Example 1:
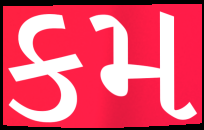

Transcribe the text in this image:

કમ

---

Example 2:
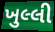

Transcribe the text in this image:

ખુલ્લી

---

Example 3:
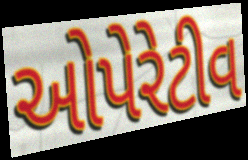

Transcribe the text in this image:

ઓપેરેટીવ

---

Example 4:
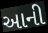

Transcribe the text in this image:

આની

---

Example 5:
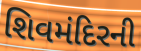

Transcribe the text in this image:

શિવમંદિરની